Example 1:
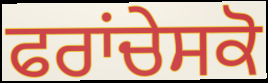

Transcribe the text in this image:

ਫਰਾਂਚੇਸਕੋ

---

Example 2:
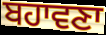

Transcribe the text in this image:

ਬਹਾਵਣਾ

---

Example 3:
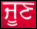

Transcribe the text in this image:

ਜੂਣ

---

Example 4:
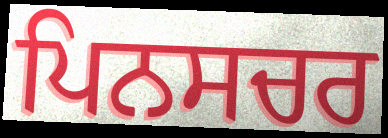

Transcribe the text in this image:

ਪਿਨਸਚਰ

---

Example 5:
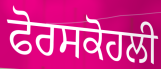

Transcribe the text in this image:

ਫੋਰਸਕੋਹਲੀ